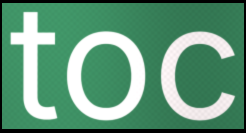
toc